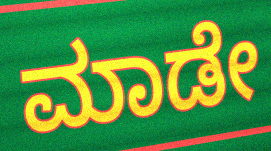
ಮಾಡೇ